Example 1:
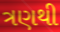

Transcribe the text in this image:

ત્રણથી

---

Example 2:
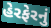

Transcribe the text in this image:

હેરફેરનું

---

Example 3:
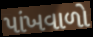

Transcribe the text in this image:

પાંખવાળો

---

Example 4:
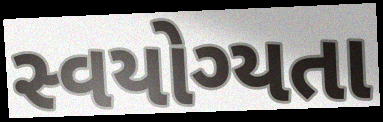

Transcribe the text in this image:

સ્વયોગ્યતા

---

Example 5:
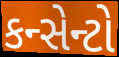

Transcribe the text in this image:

કન્સેન્ટો